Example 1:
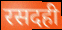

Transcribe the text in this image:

रसदही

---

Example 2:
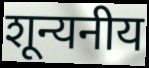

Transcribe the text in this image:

शून्यनीय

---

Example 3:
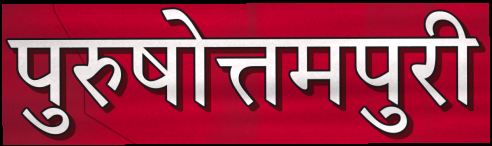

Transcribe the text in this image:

पुरुषोत्तमपुरी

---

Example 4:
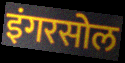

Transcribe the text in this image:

इंगरसोल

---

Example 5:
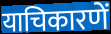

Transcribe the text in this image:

याचिकारणें